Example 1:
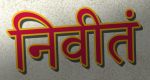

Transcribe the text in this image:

निवीतं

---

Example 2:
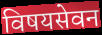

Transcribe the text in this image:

विषयसेवन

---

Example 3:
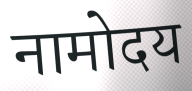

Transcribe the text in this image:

नामोदय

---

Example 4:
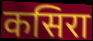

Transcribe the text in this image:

कसिरा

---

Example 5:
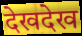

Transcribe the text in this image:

देखदेख